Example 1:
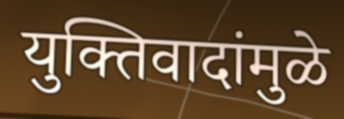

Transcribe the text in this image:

युक्तिवादांमुळे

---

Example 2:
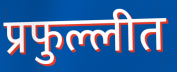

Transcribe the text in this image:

प्रफुल्लीत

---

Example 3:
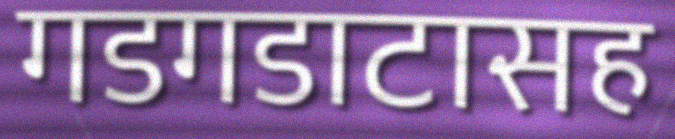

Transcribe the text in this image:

गडगडाटासह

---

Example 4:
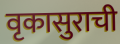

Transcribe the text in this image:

वृकासुराची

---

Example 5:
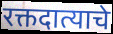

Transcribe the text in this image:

रक्तदात्याचे